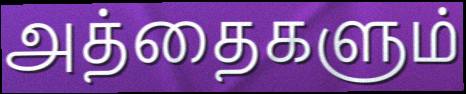
அத்தைகளும்